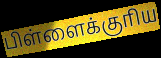
பிள்ளைக்குரிய